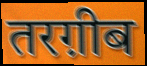
तरग़ीब